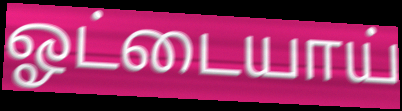
ஓட்டையாய்